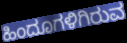
ಹಿಂದೂಗಳಿಗಿರುವ